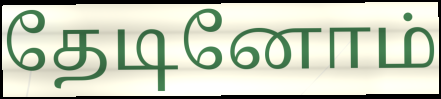
தேடினோம்